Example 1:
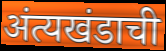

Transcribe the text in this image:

अंत्यखंडाची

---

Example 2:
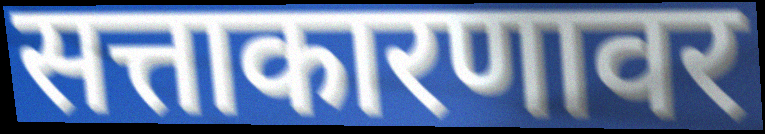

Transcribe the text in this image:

सत्ताकारणावर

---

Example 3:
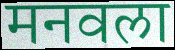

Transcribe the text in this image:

मनवला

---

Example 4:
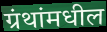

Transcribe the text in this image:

ग्रंथांमधील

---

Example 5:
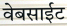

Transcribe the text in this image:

वेबसाईट